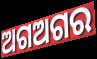
ଅଗଅଗର